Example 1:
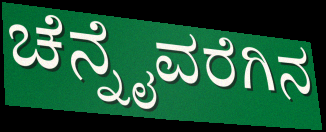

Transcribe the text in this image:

ಚೆನ್ನೈವರೆಗಿನ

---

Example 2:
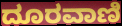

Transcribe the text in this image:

ದೂರವಾಣಿ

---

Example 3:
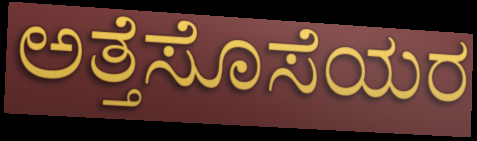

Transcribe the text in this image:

ಅತ್ತೆಸೊಸೆಯರ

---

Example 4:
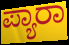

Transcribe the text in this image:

ಪ್ಯಾರಾ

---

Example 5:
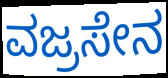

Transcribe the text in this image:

ವಜ್ರಸೇನ